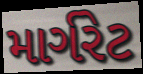
માર્ગરેટ